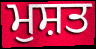
ਮੁਸ਼ਤ